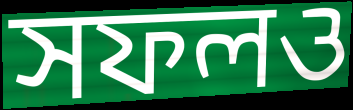
সফলও